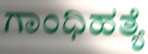
ಗಾಂಧಿಹತ್ಯೆ